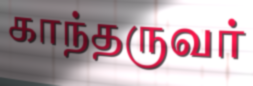
காந்தருவர்